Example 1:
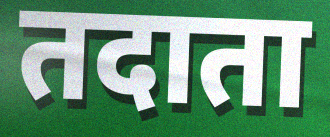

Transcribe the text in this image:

तदाता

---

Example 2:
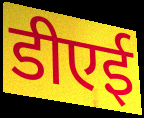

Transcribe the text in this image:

डीएई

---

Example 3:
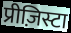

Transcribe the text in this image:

प्रीज़िस्टा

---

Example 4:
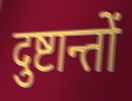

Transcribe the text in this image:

दुष्टान्तों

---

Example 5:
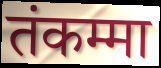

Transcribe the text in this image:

तंकम्मा